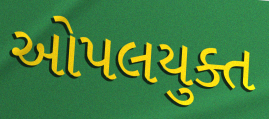
ઓપલયુક્ત